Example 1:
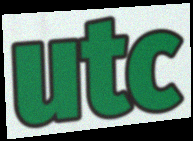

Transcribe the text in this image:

utc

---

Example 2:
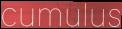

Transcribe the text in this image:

cumulus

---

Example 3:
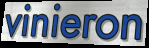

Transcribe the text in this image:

vinieron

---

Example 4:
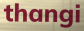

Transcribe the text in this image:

thangi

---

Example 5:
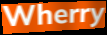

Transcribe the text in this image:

Wherry